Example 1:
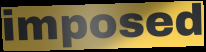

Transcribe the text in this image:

imposed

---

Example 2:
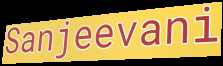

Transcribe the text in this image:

Sanjeevani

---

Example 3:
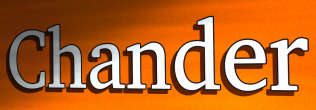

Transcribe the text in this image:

Chander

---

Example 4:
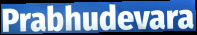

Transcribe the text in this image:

Prabhudevara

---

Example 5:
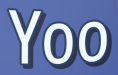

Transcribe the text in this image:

Yoo